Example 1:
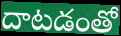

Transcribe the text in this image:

దాటడంతో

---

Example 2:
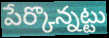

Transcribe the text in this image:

పేర్కొన్నట్టు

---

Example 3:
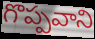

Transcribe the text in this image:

గొప్పవాని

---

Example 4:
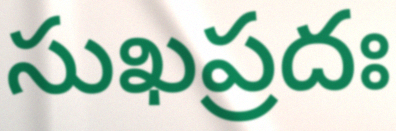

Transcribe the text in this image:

సుఖప్రదః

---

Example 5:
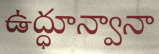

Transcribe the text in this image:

ఉద్ధూన్వానా